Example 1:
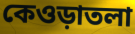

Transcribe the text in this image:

কেওড়াতলা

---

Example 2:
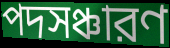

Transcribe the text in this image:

পদসঞ্চারণ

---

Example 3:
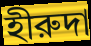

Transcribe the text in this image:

হীরুদা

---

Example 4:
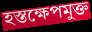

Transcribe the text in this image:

হস্তক্ষেপমুক্ত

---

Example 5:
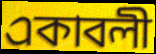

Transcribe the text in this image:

একাবলী